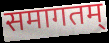
समागतम्